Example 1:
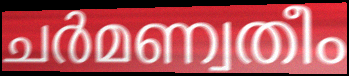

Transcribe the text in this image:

ചർമണ്വതീം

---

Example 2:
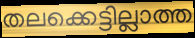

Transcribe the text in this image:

തലക്കെട്ടില്ലാത്ത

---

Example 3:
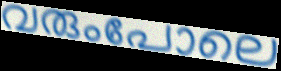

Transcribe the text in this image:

വരുംപോലെ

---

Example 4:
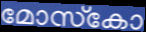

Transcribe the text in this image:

മോസ്‌കോ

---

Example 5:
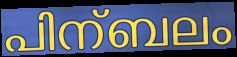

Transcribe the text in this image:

പിന്ബലം